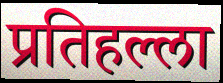
प्रतिहल्ला